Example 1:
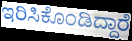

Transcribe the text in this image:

ಇರಿಸಿಕೊಂಡಿದ್ದಾರೆ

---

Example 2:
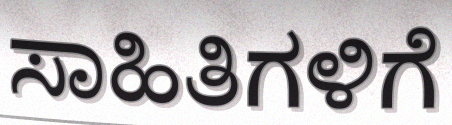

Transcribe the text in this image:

ಸಾಹಿತಿಗಳಿಗೆ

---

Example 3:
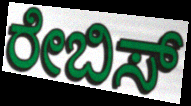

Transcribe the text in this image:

ರೇಬಿಸ್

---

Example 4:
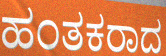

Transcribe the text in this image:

ಹಂತಕರಾದ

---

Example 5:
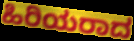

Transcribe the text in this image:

ಹಿರಿಯರಾದ